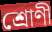
শ্রোণী